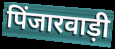
पिंजारवाड़ी